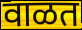
वाळत